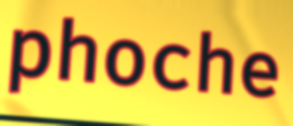
phoche